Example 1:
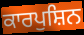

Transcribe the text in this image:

ਕਾਰਪੁਸ਼ਿਨ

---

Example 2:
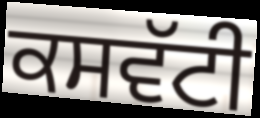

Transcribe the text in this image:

ਕਸਵੱਟੀ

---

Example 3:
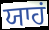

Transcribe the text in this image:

ਯਾਹਂ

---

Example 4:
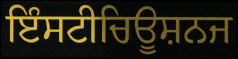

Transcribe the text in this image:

ਇੰਸਟੀਚਿਊਸ਼ਨਜ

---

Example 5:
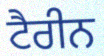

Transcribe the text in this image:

ਟੈਰੀਨ